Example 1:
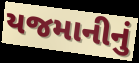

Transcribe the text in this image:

યજમાનીનું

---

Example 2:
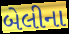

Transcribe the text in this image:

બેલીના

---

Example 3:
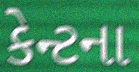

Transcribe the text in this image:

કેન્ટના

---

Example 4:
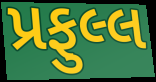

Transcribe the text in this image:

પ્રફુલ્લ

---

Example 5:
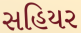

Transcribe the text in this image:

સહિયર